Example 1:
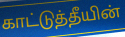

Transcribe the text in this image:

காட்டுத்தீயின்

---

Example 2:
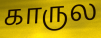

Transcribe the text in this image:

காருல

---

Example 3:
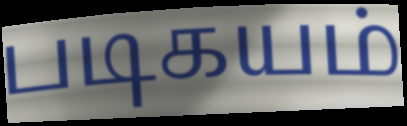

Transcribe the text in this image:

படிகயம்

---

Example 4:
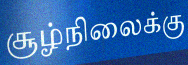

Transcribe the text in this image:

சூழ்நிலைக்கு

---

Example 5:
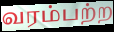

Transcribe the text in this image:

வரம்பற்ற